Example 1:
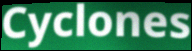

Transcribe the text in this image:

Cyclones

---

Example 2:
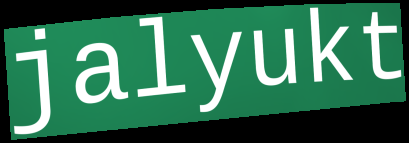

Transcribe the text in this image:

jalyukt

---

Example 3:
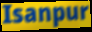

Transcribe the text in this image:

Isanpur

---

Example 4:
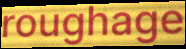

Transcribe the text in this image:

roughage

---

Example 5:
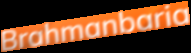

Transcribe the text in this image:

Brahmanbaria